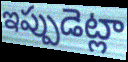
ఇప్పుడెట్లా